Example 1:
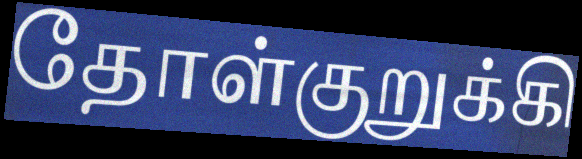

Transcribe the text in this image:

தோள்குறுக்கி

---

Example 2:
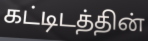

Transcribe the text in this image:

கட்டிடத்தின்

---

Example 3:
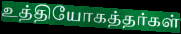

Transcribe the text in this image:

உத்தியோகத்தர்கள்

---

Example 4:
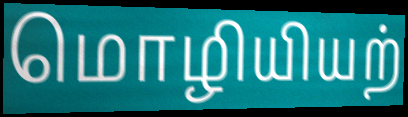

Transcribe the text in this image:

மொழியியற்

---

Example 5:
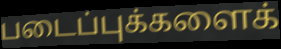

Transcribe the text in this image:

படைப்புக்களைக்